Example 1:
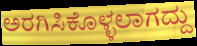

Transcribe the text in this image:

ಅರಗಿಸಿಕೊಳ್ಳಲಾಗದ್ದು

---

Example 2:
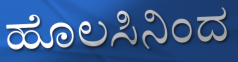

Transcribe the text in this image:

ಹೊಲಸಿನಿಂದ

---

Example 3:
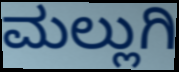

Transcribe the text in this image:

ಮಲ್ಲುಗಿ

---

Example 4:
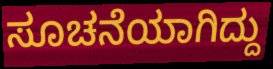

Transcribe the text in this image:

ಸೂಚನೆಯಾಗಿದ್ದು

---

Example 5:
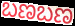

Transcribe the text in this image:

ಬಣಬಣ